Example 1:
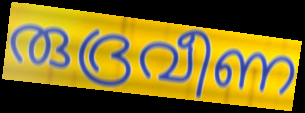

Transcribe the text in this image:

രുദ്രവീണ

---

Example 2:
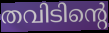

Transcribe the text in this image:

തവിടിന്റെ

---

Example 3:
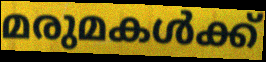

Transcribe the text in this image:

മരുമകൾക്ക്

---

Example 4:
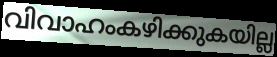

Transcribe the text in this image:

വിവാഹംകഴിക്കുകയില്ല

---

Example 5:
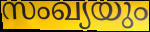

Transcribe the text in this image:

സംഖ്യയും